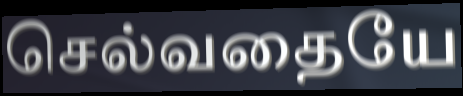
செல்வதையே